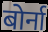
बोर्ना